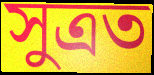
সুত্ৰত